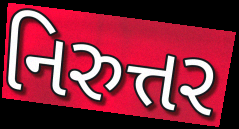
નિરુત્તર